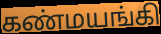
கண்மயங்கி